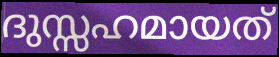
ദുസ്സഹമായത്